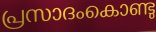
പ്രസാദംകൊണ്ടു